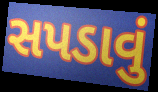
સપડાવું